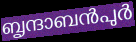
ബൃന്ദാബൻപുർ